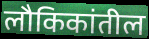
लौकिकांतील